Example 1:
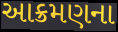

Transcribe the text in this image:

આક્રમણના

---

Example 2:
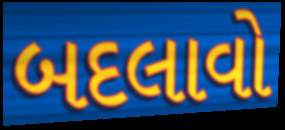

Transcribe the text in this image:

બદલાવો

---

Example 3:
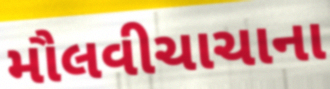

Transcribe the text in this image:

મૌલવીચાચાના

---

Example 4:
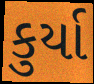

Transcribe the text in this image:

કુર્યા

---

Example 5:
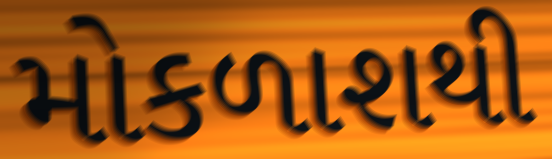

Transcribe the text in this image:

મોકળાશથી